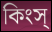
কিংস্